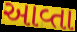
આવ્તા